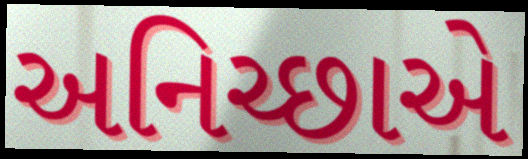
અનિચ્છાએ